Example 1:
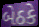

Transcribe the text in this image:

બેઠકે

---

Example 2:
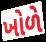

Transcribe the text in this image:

ખોળે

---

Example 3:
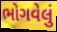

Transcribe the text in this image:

ભોગવેલું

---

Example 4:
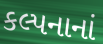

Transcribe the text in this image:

કલ્પનાનાં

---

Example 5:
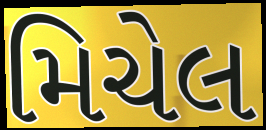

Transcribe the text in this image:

મિચેલ